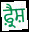
ਫ਼੍ਰੈਸ਼